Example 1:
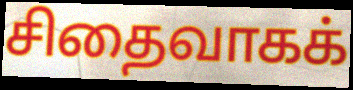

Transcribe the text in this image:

சிதைவாகக்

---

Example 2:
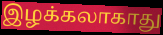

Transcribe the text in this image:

இழக்கலாகாது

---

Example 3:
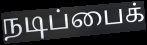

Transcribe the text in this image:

நடிப்பைக்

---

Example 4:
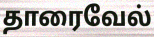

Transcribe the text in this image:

தாரைவேல்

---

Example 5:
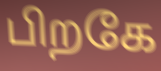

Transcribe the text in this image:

பிறகே